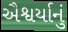
ઐશ્વર્યાનું